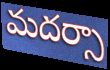
మదర్సా